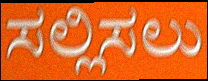
ಸಲ್ಲಿಸಲು